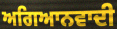
ਅਗਿਆਨਵਾਦੀ